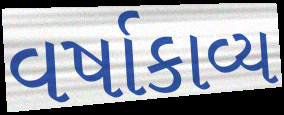
વર્ષાકાવ્ય